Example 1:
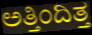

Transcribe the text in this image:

ಅತ್ತಿಂದಿತ್ತ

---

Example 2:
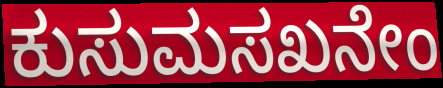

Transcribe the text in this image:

ಕುಸುಮಸಖನೇಂ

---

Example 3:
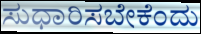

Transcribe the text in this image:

ಸುಧಾರಿಸಬೇಕೆಂದು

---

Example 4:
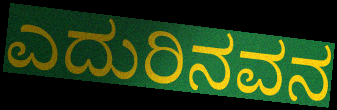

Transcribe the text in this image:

ಎದುರಿನವನ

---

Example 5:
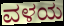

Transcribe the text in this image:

ವಳಯ